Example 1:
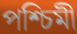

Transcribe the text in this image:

পশ্চিমী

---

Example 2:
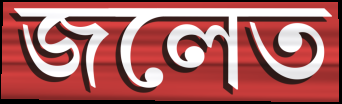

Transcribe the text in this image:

জলেত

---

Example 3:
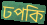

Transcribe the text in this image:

ঢপকি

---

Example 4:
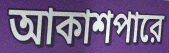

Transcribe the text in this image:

আকাশপারে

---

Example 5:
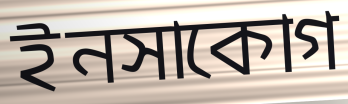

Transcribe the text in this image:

ইনসাকোগ